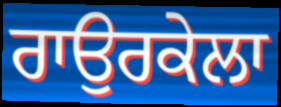
ਰਾਉਰਕੇਲਾ